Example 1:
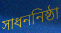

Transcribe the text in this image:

সাধননিষ্ঠা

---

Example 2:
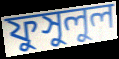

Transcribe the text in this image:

ফুসুলুল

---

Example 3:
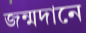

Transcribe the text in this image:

জন্মদানে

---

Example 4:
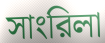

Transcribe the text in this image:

সাংরিলা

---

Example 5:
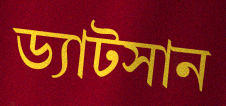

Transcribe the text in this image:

ড্যাটসান